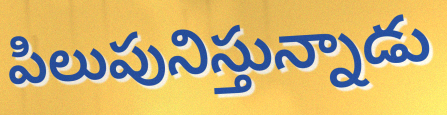
పిలుపునిస్తున్నాడు